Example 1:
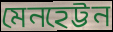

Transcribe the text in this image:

মেনহেট্টন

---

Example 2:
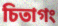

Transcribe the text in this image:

চিতাগং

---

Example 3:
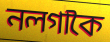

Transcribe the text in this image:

নলগাকৈ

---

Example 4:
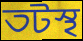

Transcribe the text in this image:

তটস্থ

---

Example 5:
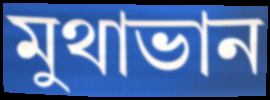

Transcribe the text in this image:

মুথাভান